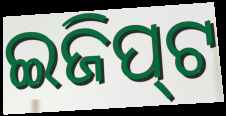
ଇଜିପ୍‌ଟ